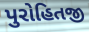
પુરોહિતજી